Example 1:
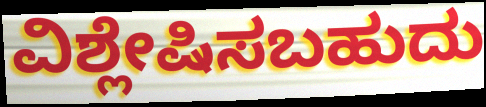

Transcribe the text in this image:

ವಿಶ್ಲೇಷಿಸಬಹುದು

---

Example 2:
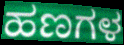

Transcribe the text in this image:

ಹಣಗಳ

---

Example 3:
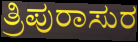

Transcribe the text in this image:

ತ್ರಿಪುರಾಸುರ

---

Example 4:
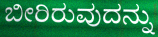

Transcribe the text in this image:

ಬೀರಿರುವುದನ್ನು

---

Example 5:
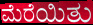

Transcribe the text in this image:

ಮೆರೆಯಿತು